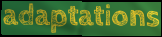
adaptations